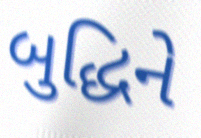
બુદ્ધિને